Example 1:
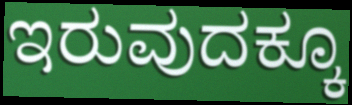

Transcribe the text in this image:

ಇರುವುದಕ್ಕೂ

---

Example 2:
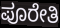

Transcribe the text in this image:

ಪೂರೇತಿ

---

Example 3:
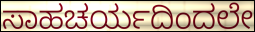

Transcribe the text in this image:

ಸಾಹಚರ್ಯದಿಂದಲೇ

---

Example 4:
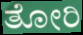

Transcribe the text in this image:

ತೋರಿ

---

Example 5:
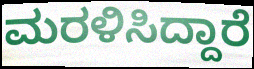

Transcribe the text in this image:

ಮರಳಿಸಿದ್ದಾರೆ